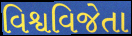
વિશ્વવિજેતા